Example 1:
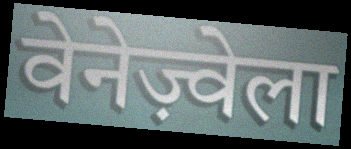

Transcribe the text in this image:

वेनेज़्वेला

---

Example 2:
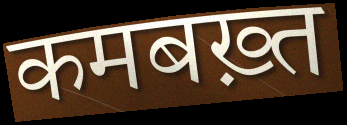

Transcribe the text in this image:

कमबख़्त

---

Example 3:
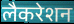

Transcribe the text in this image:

लैकरेशन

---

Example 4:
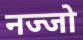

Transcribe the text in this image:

नज्जो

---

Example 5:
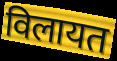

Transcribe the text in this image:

विलायत